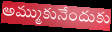
అమ్ముకునేందుకు